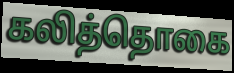
கலித்தொகை